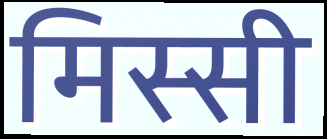
मिस्सी